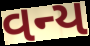
વન્ય